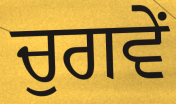
ਚੁਗਵੇਂ